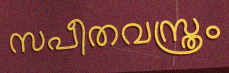
സപീതവസ്ത്രം